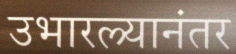
उभारल्यानंतर